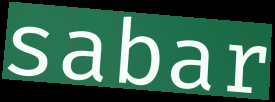
sabar